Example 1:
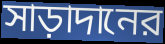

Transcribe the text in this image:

সাড়াদানের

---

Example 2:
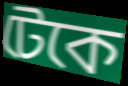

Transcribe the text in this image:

টেকে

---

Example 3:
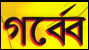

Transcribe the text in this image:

গর্ব্বে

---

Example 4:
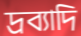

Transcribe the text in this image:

দ্রব্যাদি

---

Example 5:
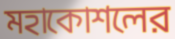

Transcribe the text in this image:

মহাকোশলের